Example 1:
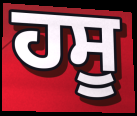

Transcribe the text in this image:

ਹਸੂ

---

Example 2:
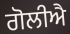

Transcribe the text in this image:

ਗੋਲੀਐ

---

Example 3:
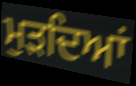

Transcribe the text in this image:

ਮੁੜਦਿਆਂ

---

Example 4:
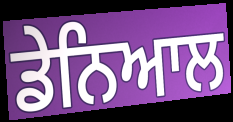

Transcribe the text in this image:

ਡੇਨਿਆਲ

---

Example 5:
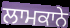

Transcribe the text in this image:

ਲਾਮਕਾਨੇ